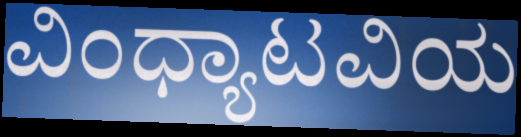
ವಿಂಧ್ಯಾಟವಿಯ